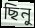
ছিনু